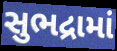
સુભદ્રામાં